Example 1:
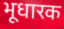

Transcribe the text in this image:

भूधारक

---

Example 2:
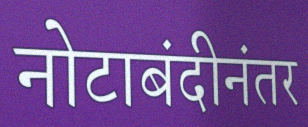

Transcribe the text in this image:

नोटाबंदीनंतर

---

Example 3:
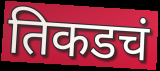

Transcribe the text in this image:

तिकडचं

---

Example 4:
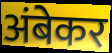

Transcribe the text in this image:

अंबेकर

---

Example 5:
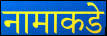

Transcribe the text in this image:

नामाकडे